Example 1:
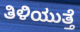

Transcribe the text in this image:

ತಿಳಿಯುತ್ತೆ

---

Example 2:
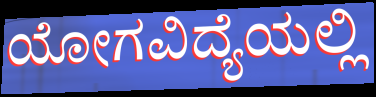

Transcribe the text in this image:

ಯೋಗವಿದ್ಯೆಯಲ್ಲಿ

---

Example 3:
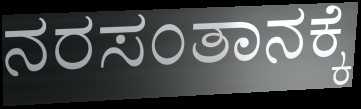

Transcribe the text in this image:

ನರಸಂತಾನಕ್ಕೆ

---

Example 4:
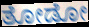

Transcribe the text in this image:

ತೋಡೋ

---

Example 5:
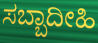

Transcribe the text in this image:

ಸಬ್ಬಾದೀಹಿ